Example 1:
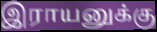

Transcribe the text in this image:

இராயனுக்கு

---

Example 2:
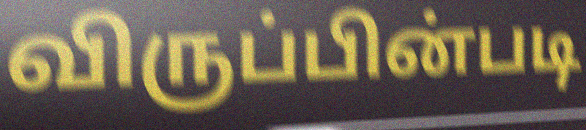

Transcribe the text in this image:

விருப்பின்படி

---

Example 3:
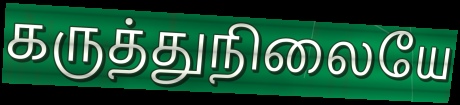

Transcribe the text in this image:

கருத்துநிலையே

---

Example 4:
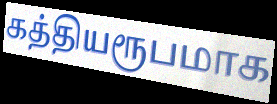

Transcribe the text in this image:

கத்தியரூபமாக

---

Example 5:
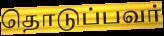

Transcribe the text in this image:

தொடுப்பவர்